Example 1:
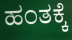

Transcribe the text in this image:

ಹಂತಕ್ಕೆ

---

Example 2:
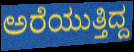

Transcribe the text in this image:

ಅರೆಯುತ್ತಿದ್ದ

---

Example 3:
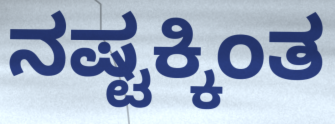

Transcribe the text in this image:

ನಷ್ಟಕ್ಕಿಂತ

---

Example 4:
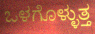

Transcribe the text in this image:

ಒಳಗೊಳ್ಳುತ್ತ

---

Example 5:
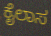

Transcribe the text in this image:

ಕೈಲಾಸ